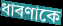
ধাৰণাকে